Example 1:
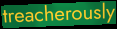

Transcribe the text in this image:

treacherously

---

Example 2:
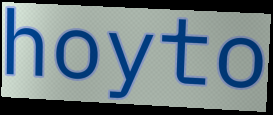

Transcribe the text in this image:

hoyto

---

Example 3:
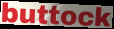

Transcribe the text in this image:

buttock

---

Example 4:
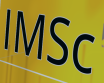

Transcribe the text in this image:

IMSc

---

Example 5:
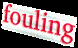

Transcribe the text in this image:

fouling